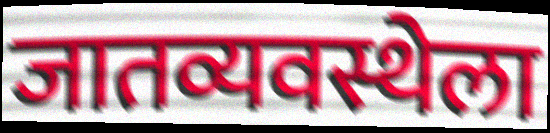
जातव्यवस्थेला